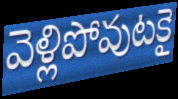
వెళ్లిపోవుటకై